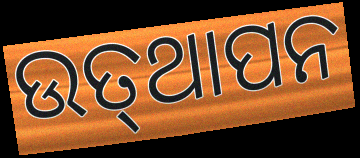
ଉତ୍‍ଥାପନ